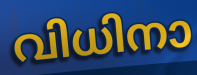
വിധിനാ